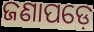
ଜଣାପଡ଼େ